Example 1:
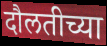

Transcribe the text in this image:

दौलतीच्या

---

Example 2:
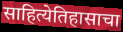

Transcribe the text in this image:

साहित्येतिहासाचा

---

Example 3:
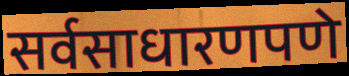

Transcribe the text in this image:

सर्वसाधारणपणे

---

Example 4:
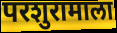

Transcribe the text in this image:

परशुरामाला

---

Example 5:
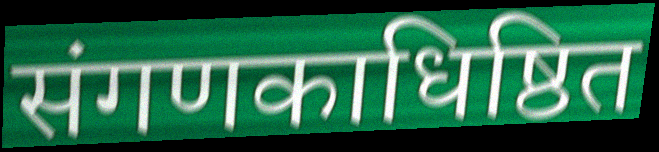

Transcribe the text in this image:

संगणकाधिष्ठित